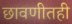
छावणीतही